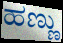
ಹಣ್ಣು